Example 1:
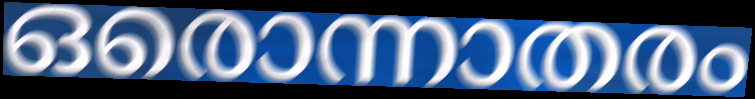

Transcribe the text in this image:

ഒരൊന്നാതരം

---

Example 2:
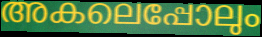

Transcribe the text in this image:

അകലെപ്പോലും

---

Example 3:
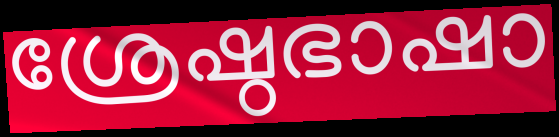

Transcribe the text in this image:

ശ്രേഷ്ഠഭാഷാ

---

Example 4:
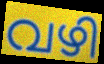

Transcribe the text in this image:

വഴി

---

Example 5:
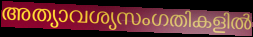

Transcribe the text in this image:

അത്യാവശ്യസംഗതികളിൽ